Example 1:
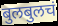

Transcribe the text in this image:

बुलबुलचं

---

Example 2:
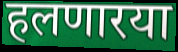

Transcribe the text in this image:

हलणारया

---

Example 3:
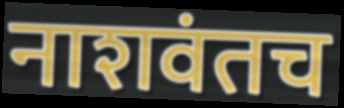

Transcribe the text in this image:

नाशवंतच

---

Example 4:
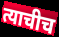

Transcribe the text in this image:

त्याचीच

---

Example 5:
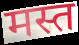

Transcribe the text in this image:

मस्त